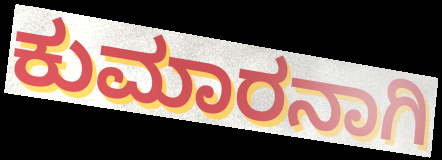
ಕುಮಾರನಾಗಿ